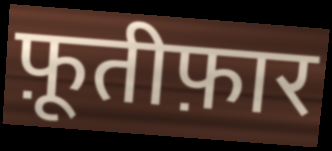
फ़ूतीफ़ार